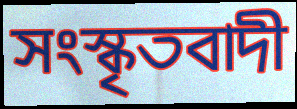
সংস্কৃতবাদী